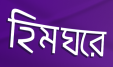
হিমঘরে